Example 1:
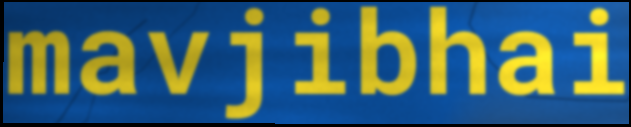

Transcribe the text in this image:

mavjibhai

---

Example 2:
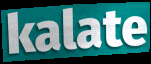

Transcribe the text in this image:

kalate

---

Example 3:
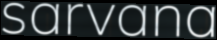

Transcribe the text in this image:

sarvana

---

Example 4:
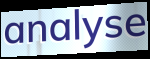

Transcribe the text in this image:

analyse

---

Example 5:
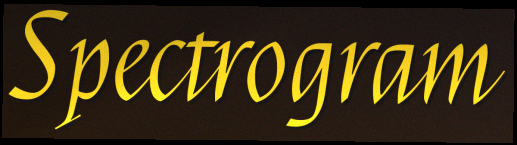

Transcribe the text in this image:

Spectrogram